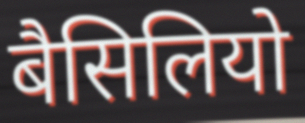
बैसिलियो